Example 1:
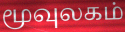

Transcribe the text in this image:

மூவுலகம்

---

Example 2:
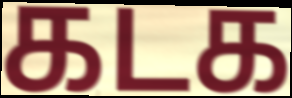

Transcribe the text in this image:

கடக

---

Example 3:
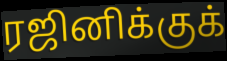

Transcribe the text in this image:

ரஜினிக்குக்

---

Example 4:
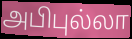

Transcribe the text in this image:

அபிபுல்லா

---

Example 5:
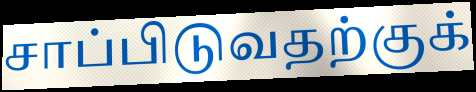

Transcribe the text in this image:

சாப்பிடுவதற்குக்